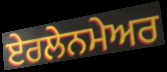
ਏਰਲੇਨਮੇਅਰ